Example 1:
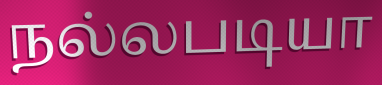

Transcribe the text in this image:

நல்லபடியா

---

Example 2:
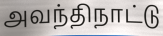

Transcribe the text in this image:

அவந்திநாட்டு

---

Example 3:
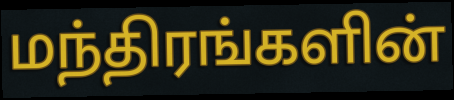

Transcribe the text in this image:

மந்திரங்களின்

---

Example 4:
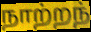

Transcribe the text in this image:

நாற்றந்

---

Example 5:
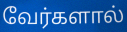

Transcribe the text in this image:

வேர்களால்